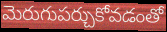
మెరుగుపర్చుకోవడంతో